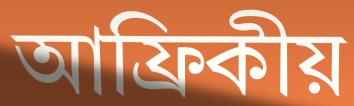
আফ্ৰিকীয়